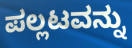
ಪಲ್ಲಟವನ್ನು